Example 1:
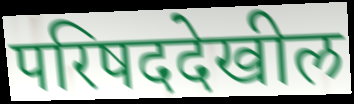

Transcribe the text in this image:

परिषददेखील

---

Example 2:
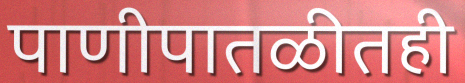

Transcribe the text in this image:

पाणीपातळीतही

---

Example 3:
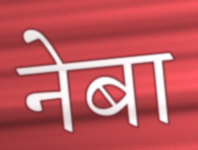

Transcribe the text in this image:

नेबा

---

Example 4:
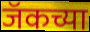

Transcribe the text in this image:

जॅकच्या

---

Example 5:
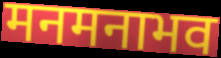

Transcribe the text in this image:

मनमनाभव